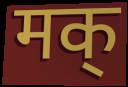
मक्